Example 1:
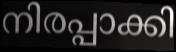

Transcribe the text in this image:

നിരപ്പാക്കി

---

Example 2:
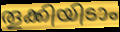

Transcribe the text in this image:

തൂക്കിയിടാം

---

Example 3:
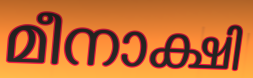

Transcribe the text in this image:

മീനാക്ഷി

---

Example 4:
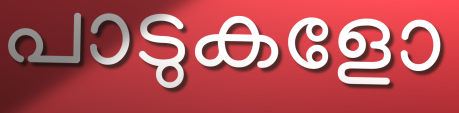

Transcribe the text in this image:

പാടുകളോ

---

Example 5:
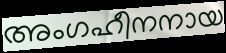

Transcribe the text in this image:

അംഗഹീനനായ